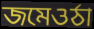
জমেওঠা